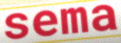
sema